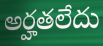
అర్హతలేదు